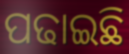
ପଢାଇଛି